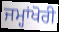
ਜਮ੍ਹਾਂਖੋਰੀ